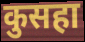
कुसहा